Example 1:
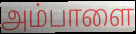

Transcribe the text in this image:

அம்பாளை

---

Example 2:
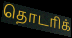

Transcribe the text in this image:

தொடரிக்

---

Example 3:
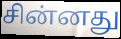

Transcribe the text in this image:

சின்னது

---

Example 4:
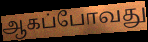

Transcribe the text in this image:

ஆகப்போவது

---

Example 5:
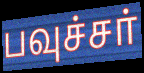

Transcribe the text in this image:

பவுச்சர்